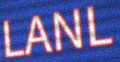
LANL